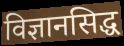
विज्ञानसिद्ध